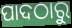
ପାଦଠାରୁ